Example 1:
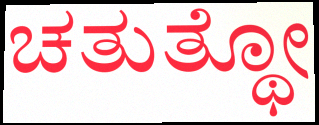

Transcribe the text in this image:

ಚತುತ್ಥೋ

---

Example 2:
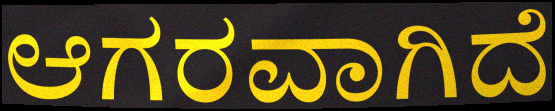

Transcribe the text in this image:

ಆಗರವಾಗಿದೆ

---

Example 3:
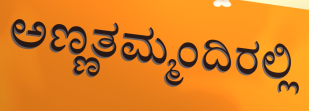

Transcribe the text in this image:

ಅಣ್ಣತಮ್ಮಂದಿರಲ್ಲಿ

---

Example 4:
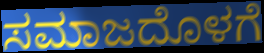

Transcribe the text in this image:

ಸಮಾಜದೊಳಗೆ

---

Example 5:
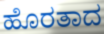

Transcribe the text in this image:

ಹೊರತಾದ